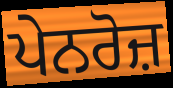
ਪੇਨਰੋਜ਼